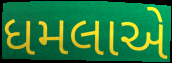
ધમલાએ